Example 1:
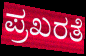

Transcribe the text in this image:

ಪ್ರಖರತೆ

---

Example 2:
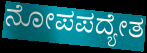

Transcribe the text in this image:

ನೋಪಪದ್ಯೇತ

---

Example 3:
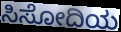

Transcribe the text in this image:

ಸಿಸೋದಿಯ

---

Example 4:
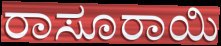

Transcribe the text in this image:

ರಾಸೂರಾಯಿ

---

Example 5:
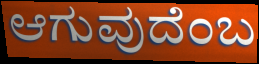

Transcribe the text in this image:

ಆಗುವುದೆಂಬ